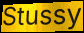
Stussy